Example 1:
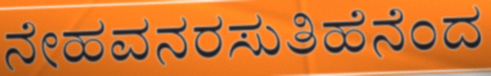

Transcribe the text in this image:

ನೇಹವನರಸುತಿಹೆನೆಂದ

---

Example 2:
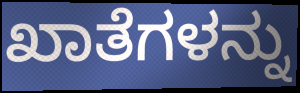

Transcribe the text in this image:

ಖಾತೆಗಳನ್ನು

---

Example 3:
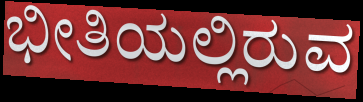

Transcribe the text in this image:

ಭೀತಿಯಲ್ಲಿರುವ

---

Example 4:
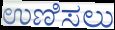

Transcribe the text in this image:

ಉಣಿಸಲು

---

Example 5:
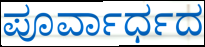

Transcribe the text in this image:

ಪೂರ್ವಾರ್ಧದ